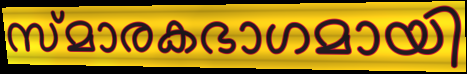
സ്മാരകഭാഗമായി